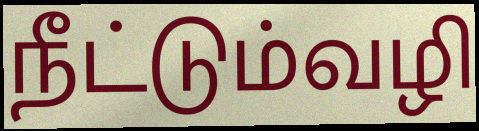
நீட்டும்வழி